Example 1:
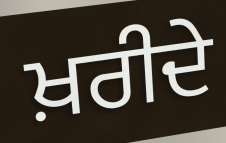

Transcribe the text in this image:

ਖ਼ਰੀਦੇ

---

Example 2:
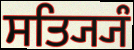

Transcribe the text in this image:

ਸਤ੍ਯ੍ਯਿੰ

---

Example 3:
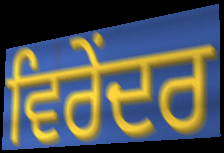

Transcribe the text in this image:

ਵਿਰੇਂਦਰ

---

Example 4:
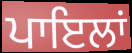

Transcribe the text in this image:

ਪਾਇਲਾਂ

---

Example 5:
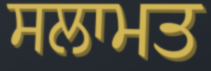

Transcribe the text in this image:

ਸਲਾਮਤ